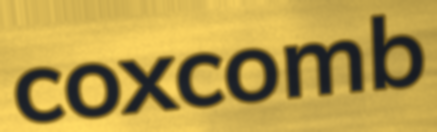
coxcomb